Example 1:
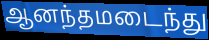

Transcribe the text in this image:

ஆனந்தமடைந்து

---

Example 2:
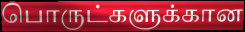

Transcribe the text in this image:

பொருட்களுக்கான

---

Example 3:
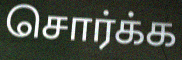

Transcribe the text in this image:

சொர்க்க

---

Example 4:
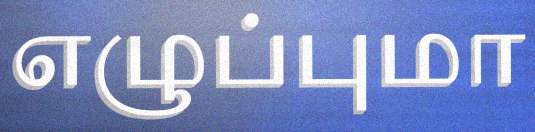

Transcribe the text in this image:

எழுப்புமா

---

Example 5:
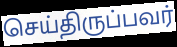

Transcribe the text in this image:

செய்திருப்பவர்